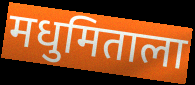
मधुमिताला